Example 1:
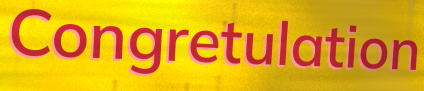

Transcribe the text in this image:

Congretulation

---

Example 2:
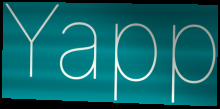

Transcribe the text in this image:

Yapp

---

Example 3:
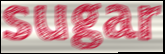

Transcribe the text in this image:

sugar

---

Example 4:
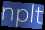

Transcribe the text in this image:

nplt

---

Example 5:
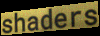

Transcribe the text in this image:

shaders